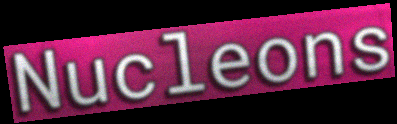
Nucleons